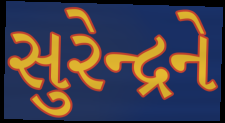
સુરેન્દ્રને